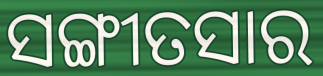
ସଙ୍ଗୀତସାର